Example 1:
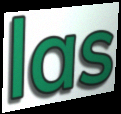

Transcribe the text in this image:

las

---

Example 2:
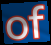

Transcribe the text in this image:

of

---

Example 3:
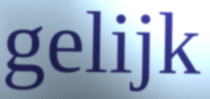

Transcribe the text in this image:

gelijk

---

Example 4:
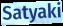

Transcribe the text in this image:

Satyaki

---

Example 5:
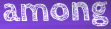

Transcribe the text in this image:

among